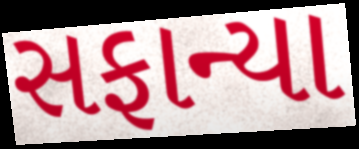
સફાન્યા